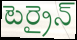
టెర్రైన్